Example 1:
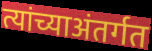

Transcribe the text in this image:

त्यांच्याअंतर्गत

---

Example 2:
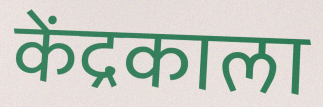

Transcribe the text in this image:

केंद्रकाला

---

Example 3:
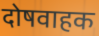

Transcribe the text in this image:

दोषवाहक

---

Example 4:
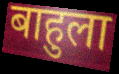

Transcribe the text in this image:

बाहुला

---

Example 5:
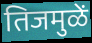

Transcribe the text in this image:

तिजमुळें